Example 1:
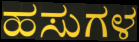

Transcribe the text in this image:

ಹಸುಗಳ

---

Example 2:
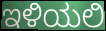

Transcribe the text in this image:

ಇಳಿಯಲಿ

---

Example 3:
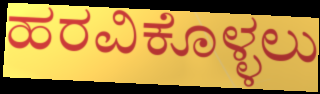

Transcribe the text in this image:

ಹರವಿಕೊಳ್ಳಲು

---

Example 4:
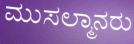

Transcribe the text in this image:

ಮುಸಲ್ಮಾನರು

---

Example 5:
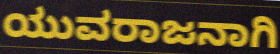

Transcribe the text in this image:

ಯುವರಾಜನಾಗಿ